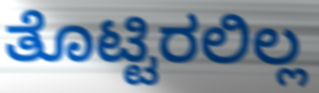
ತೊಟ್ಟಿರಲಿಲ್ಲ